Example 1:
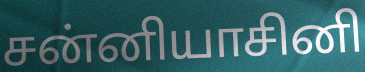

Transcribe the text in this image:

சன்னியாசினி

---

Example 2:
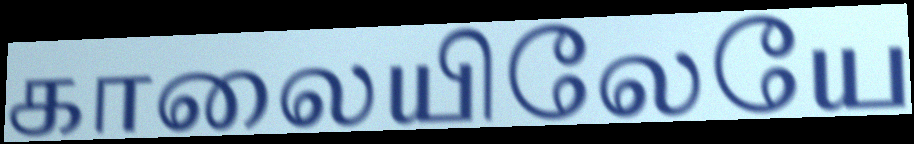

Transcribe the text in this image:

காலையிலேயே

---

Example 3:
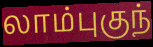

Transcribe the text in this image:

லாம்புகுந்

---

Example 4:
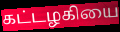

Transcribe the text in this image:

கட்டழகியை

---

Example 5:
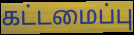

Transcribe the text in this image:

கட்டமைப்பு